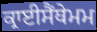
ਕ੍ਰਾਈਸੈਂਥੇਮਮ